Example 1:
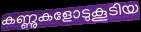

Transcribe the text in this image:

കണ്ണുകളോടുകൂടിയ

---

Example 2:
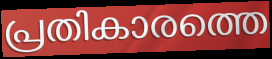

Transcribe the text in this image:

പ്രതികാരത്തെ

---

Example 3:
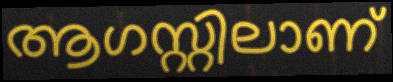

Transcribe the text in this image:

ആഗസ്റ്റിലാണ്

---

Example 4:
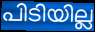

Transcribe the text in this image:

പിടിയില്ല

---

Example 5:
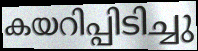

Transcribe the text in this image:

കയറിപ്പിടിച്ചു